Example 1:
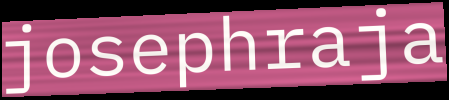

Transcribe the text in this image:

josephraja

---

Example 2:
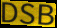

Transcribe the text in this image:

DSB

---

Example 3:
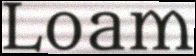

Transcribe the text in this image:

Loam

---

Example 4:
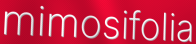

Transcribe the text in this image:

mimosifolia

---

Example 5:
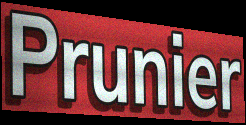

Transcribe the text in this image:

Prunier